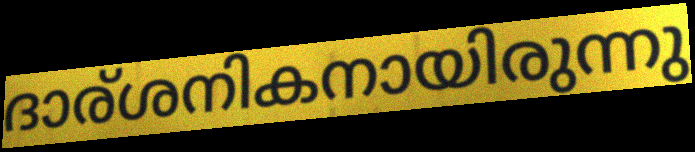
ദാര്ശനികനായിരുന്നു